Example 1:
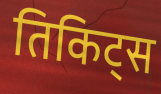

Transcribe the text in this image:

तिकिट्स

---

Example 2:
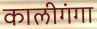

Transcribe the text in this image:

कालीगंगा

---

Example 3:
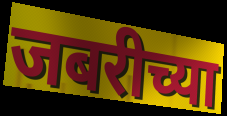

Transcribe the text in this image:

जबरीच्या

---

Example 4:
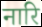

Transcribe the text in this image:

नारि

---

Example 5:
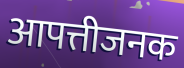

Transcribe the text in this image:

आपत्तीजनक